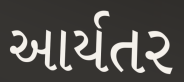
આર્યતર